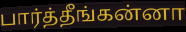
பார்த்தீங்கன்னா